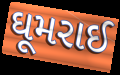
ઘૂમરાઈ